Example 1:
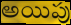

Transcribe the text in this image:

అయిపు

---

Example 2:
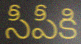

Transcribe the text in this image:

సీపీకి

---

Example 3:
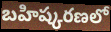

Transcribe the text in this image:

బహిష్కరణలో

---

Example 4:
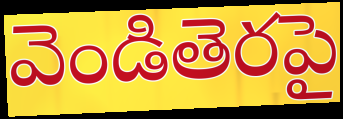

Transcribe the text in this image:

వెండితెరపై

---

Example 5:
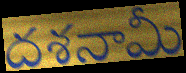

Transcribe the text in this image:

దశనామీ